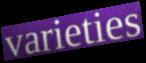
varieties